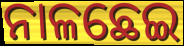
ନାଳଛେଇ